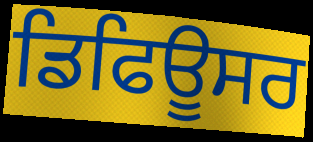
ਡਿਫਿਊਸਰ